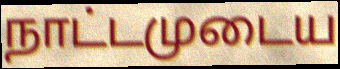
நாட்டமுடைய